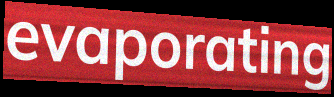
evaporating